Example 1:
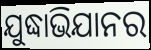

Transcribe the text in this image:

ଯୁଦ୍ଧାଭିଯାନର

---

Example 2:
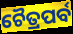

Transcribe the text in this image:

ଚୈତ୍ରପର୍ବ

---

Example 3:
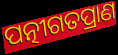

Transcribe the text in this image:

ପତ୍ନୀଗତପ୍ରାଣ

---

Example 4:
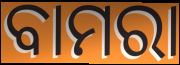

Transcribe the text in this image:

ବାମରା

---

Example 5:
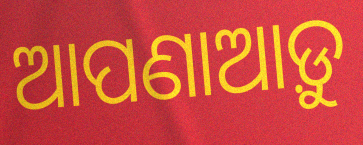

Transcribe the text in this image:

ଆପଣାଆଡ଼ୁ